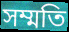
সম্মতি